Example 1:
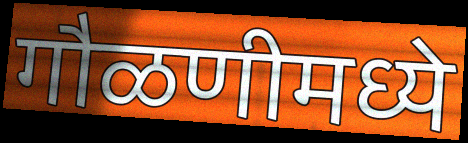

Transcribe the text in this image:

गौळणीमध्ये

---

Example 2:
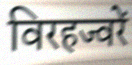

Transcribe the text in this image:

विरहज्वरें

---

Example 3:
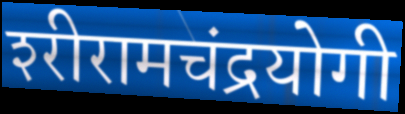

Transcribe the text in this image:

श्रीरामचंद्रयोगी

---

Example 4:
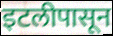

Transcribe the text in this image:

इटलीपासून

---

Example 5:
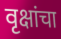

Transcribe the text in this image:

वृक्षांचा